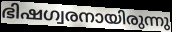
ഭിഷഗ്വരനായിരുന്നു